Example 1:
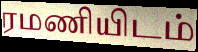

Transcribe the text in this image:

ரமணியிடம்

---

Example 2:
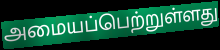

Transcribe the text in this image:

அமையப்பெற்றுள்ளது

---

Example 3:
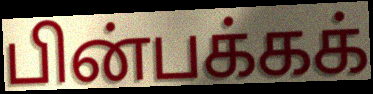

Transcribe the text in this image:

பின்பக்கக்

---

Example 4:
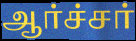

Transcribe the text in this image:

ஆர்ச்சர்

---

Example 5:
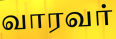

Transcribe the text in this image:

வாரவர்